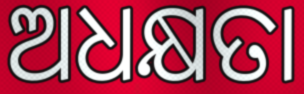
ଅଧକ୍ଷତା